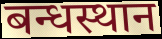
बन्धस्थान